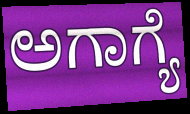
ಅಗಾಗ್ಯೆ